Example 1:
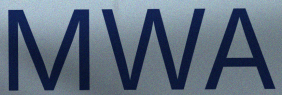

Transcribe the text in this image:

MWA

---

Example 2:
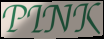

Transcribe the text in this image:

PINK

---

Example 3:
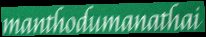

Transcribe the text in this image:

manthodumanathai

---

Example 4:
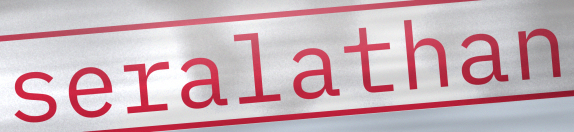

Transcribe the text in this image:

seralathan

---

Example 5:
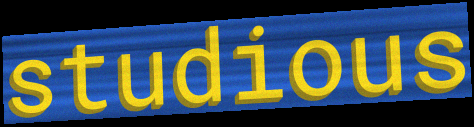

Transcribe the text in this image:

studious